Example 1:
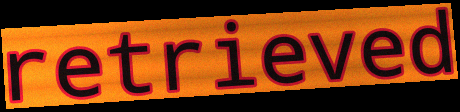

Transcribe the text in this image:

retrieved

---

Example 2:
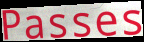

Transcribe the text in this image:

Passes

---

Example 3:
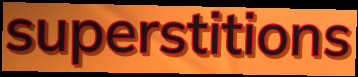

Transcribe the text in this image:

superstitions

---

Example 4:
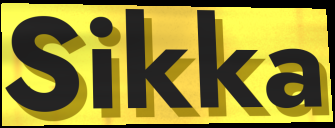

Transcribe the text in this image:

Sikka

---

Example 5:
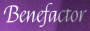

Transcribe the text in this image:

Benefactor